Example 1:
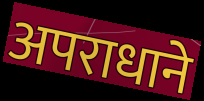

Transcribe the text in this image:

अपराधाने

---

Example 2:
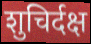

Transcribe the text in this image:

शुचिर्दक्ष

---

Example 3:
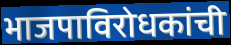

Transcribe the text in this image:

भाजपाविरोधकांची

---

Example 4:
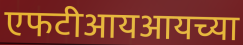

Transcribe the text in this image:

एफटीआयआयच्या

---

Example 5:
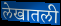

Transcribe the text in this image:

लेखातली